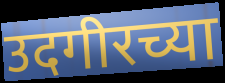
उदगीरच्या